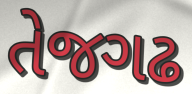
તેજગઢ